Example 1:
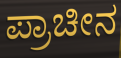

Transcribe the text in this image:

ಪ್ರಾಚೀನ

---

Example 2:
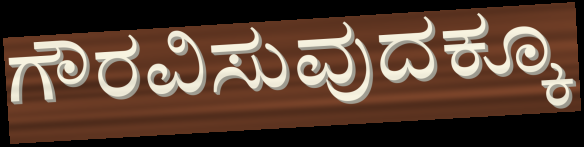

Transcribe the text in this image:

ಗೌರವಿಸುವುದಕ್ಕೂ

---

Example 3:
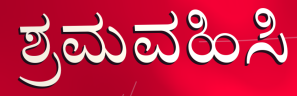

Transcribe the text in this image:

ಶ್ರಮವಹಿಸಿ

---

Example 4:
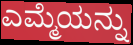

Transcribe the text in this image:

ಎಮ್ಮೆಯನ್ನು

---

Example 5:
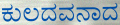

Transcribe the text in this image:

ಕುಲದವನಾದ